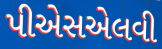
પીએસએલવી